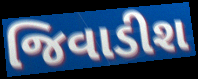
જિવાડીશ